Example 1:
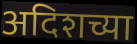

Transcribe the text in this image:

अदिशच्या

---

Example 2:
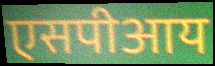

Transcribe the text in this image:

एसपीआय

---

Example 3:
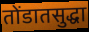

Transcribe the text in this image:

तोंडातसुद्धा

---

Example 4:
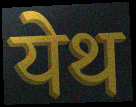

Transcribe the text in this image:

येथ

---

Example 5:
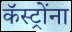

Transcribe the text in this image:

कॅस्ट्रोंना